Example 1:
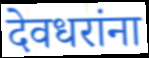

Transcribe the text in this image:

देवधरांना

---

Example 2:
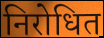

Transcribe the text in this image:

निरोधित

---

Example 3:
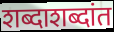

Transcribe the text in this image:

शब्दाशब्दांत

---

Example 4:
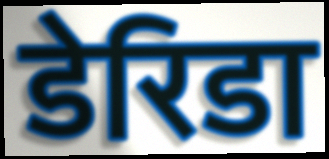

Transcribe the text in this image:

डेरिडा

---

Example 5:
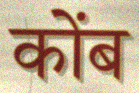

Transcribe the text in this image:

कोंब